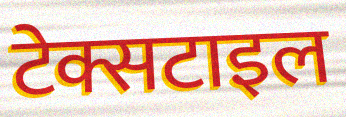
टेक्सटाइल